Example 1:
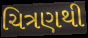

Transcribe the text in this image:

ચિત્રણથી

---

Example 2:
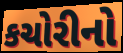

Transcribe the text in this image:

કચોરીનો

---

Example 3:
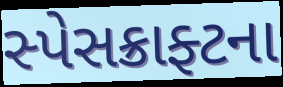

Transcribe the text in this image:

સ્પેસક્રાફ્ટના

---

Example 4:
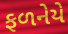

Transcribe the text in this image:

ફળનેયે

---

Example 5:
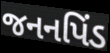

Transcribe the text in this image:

જનનપિંડ